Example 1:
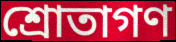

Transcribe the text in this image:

শ্রোতাগণ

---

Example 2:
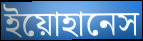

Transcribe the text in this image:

ইয়োহানেস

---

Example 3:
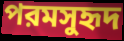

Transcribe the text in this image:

পরমসুহৃদ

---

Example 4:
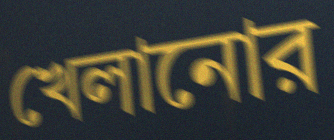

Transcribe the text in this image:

খেলানোর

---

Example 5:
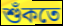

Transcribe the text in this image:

শুঁকতে